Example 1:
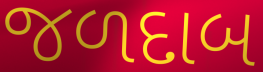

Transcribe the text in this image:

જળદાબ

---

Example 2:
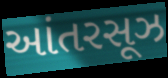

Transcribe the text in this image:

આંતરસૂઝ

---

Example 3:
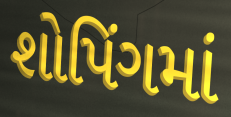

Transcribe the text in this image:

શોપિંગમાં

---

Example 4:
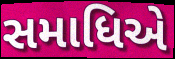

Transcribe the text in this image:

સમાધિએ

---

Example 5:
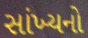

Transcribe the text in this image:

સાંખ્યનો